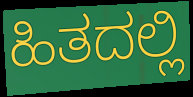
ಹಿತದಲ್ಲಿ